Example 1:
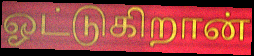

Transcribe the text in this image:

ஓட்டுகிறான்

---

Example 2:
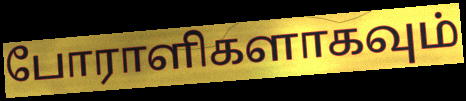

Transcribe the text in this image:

போராளிகளாகவும்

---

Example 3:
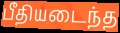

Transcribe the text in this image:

பீதியடைந்த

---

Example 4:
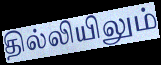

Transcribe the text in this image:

தில்லியிலும்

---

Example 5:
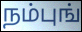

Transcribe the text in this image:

நம்புங்